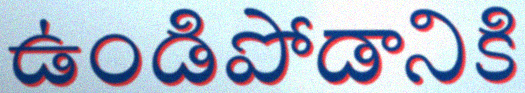
ఉండిపోడానికి